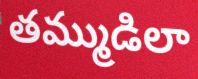
తమ్ముడిలా